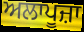
ਅਲਾਪੂਜ਼ਾ